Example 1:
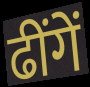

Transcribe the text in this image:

ढींगें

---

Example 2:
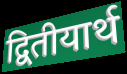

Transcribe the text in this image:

द्वितीयार्थ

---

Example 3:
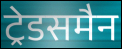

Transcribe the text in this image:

ट्रेडसमैन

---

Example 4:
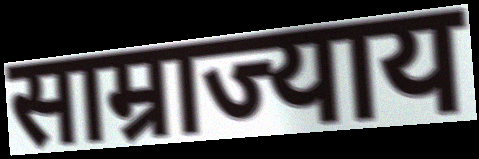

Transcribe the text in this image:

साम्राज्याय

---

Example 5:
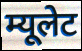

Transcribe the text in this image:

म्यूलेट